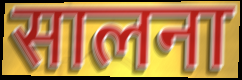
सालना